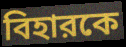
বিহারকে